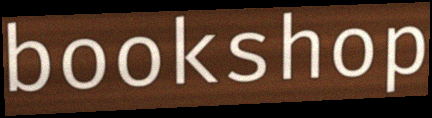
bookshop